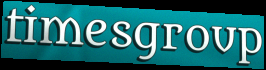
timesgroup